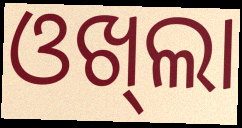
ଓଖ୍‌ଲା